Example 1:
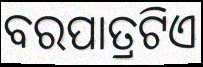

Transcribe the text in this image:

ବରପାତ୍ରଟିଏ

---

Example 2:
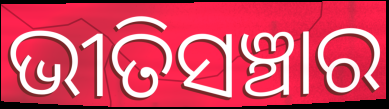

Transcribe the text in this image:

ଭୀତିସଞ୍ଚାର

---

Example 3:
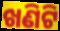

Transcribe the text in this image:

ଖଣିଟି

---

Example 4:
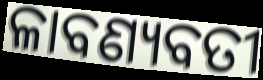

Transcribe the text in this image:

ଳାବଣ୍ୟବତୀ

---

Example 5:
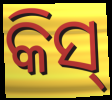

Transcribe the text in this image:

କିସ୍